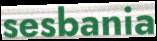
sesbania